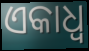
ଏକାଧ୍ଵ